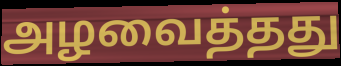
அழவைத்தது